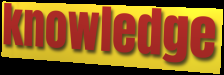
knowledge